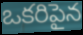
ఒకరిపైన